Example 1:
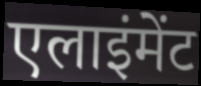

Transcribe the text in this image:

एलाइंमेंट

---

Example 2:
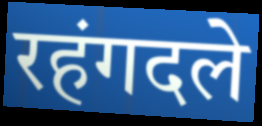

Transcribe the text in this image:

रहंगदले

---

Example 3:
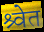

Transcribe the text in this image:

श्र्वेत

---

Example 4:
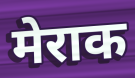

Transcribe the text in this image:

मेराक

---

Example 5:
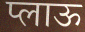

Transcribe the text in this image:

प्लाऊ